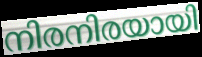
നിരനിരയായി